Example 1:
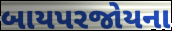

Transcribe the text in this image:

બાયપરજોયના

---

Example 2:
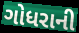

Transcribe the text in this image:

ગોધરાની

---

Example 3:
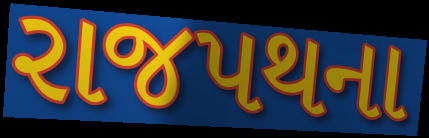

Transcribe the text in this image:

રાજપથના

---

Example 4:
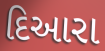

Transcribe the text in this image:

દિઆરા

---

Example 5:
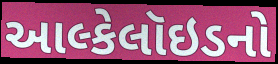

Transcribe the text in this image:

આલ્કેલૉઇડનો